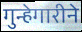
गुन्हेगारीने